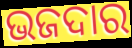
ଭଜଦାର